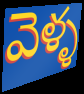
వెళ్ళ